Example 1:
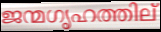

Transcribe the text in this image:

ജന്മഗൃഹത്തില്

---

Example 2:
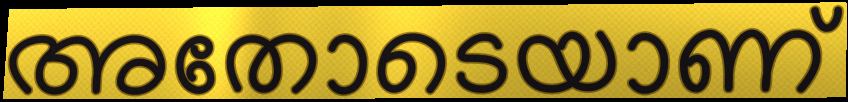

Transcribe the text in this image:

അതോടെയാണ്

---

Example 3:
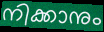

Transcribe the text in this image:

നിക്കാനും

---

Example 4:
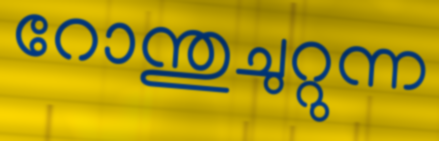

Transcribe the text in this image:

റോന്തുചുറ്റുന്ന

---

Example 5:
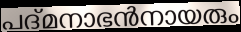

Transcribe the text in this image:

പദ്മനാഭൻനായരും